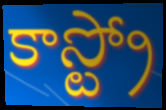
కాస్ట్రో